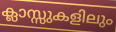
ക്ലാസ്സുകളിലും